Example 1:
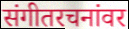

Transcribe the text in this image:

संगीतरचनांवर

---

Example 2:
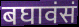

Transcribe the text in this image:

बघावंसं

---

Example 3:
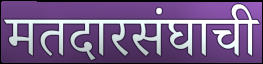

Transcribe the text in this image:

मतदारसंघाची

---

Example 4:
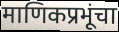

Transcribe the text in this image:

माणिकप्रभूंचा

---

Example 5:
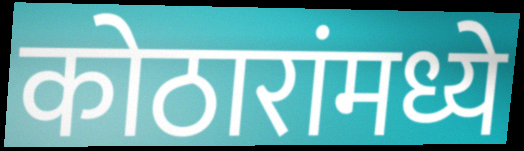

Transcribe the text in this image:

कोठारांमध्ये